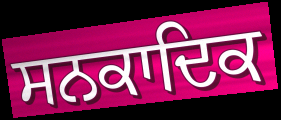
ਸਨਕਾਦਿਕ